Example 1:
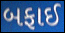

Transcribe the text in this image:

બફાઈ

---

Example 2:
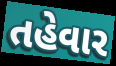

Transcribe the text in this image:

તહેવાર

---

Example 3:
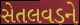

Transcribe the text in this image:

સેતલવડને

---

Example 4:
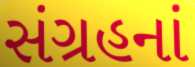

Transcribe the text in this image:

સંગ્રહનાં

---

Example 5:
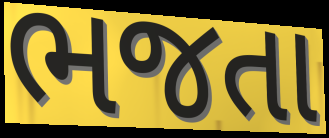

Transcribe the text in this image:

ભજતા